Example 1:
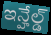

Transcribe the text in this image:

ఇన్హేల్డ్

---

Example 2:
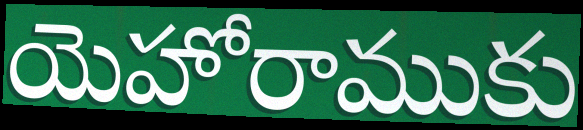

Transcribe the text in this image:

యెహోరాముకు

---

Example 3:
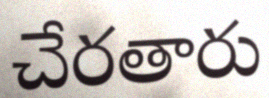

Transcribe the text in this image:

చేరతారు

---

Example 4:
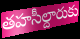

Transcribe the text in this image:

తహసీల్దారుకు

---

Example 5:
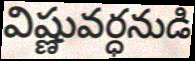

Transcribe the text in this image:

విష్ణువర్ధనుడి